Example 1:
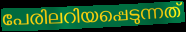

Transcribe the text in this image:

പേരിലറിയപ്പെടുന്നത്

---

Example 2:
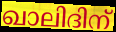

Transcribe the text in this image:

ഖാലിദിന്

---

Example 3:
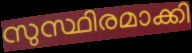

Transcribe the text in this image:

സുസ്ഥിരമാക്കി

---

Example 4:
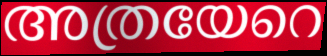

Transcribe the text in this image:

അത്രയേറെ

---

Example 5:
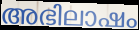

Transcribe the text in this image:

അഭിലാഷം